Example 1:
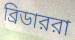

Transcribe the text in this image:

ব্রিডাররা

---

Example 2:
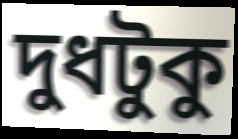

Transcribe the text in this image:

দুধটুকু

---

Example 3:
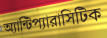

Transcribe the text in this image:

অ্যান্টিপ্যারাসিটিক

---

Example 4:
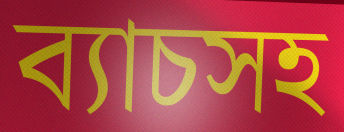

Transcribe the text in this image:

ব্যাচসহ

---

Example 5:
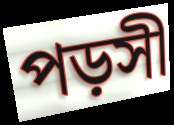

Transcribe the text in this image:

পড়সী